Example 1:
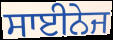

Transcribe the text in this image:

ਸਾਈਨੇਜ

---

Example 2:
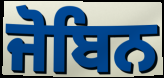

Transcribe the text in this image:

ਜੋਬਿਨ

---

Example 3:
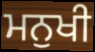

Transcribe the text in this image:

ਮਨੁਖੀ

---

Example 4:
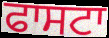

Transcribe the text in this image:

ਫਾਸਟਾ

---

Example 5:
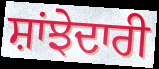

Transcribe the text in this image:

ਸ਼ਾਂਝੇਦਾਰੀ